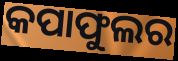
କପାଫୁଲର